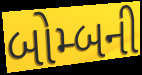
બોમ્બની